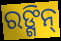
ରଙ୍ଗିନ୍